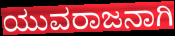
ಯುವರಾಜನಾಗಿ